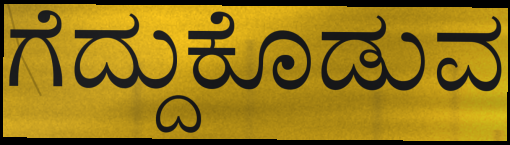
ಗೆದ್ದುಕೊಡುವ